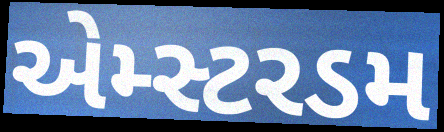
એમ્સ્ટરડમ